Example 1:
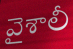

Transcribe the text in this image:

వైశాలీ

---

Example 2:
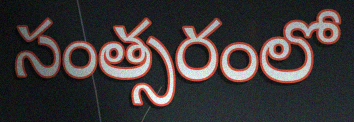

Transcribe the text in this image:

సంత్సరంలో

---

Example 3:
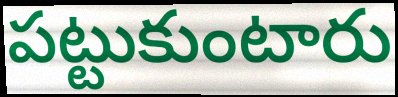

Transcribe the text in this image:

పట్టుకుంటారు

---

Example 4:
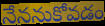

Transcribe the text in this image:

నేననుకోవడం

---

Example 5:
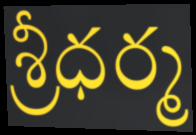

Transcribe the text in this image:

శ్రీధర్మ